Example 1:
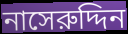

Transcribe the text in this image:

নাসেরুদ্দিন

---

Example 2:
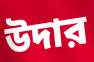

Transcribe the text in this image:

উদার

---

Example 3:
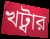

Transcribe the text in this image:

খট্বার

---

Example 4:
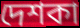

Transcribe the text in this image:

দেশকা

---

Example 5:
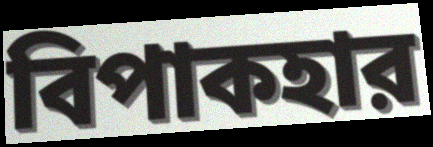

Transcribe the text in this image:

বিপাকহার